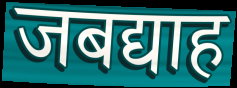
जबद्याह